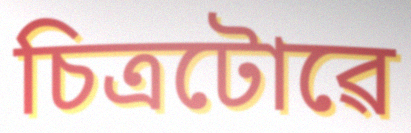
চিত্ৰটোৱে